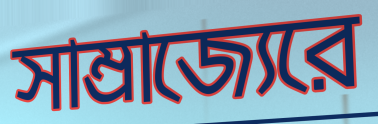
সাম্রাজ্যেরে